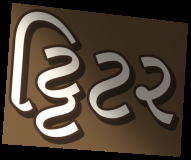
ટ્ટિટર